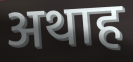
अथाह